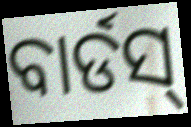
ବାର୍ଡସ୍